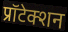
प्रॉटेक्शन